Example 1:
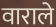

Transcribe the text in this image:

वाराले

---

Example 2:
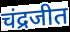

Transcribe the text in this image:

चंद्रजीत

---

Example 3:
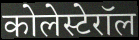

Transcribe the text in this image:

कोलेस्टेरॉल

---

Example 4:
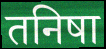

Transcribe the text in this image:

तनिषा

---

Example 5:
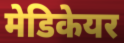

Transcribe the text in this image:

मेडिकेयर